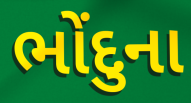
ભોંદુના